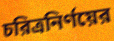
চরিত্রনির্ণয়ের